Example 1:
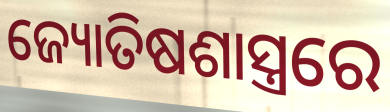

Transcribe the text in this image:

ଜ୍ୟୋତିଷଶାସ୍ତ୍ରରେ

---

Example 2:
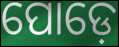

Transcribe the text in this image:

ପୋଡ଼େ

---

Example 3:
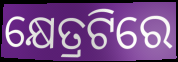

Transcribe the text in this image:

କ୍ଷେତ୍ରଟିରେ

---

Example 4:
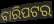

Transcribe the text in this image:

ବାରିପଟର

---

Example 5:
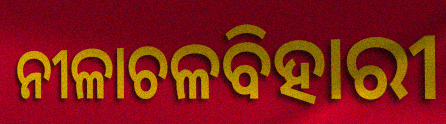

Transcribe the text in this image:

ନୀଳାଚଳବିହାରୀ